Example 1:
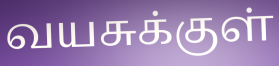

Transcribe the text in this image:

வயசுக்குள்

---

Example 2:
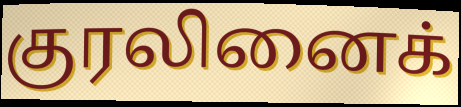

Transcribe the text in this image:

குரலினைக்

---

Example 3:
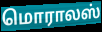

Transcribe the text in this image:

மொராலஸ்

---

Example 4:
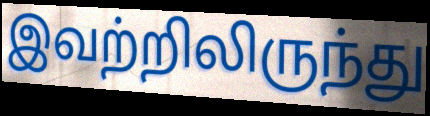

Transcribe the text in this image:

இவற்றிலிருந்து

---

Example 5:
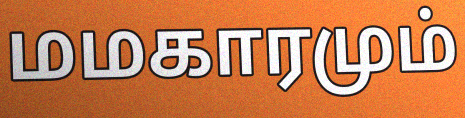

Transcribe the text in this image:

மமகாரமும்